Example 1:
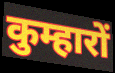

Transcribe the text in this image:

कुम्हारों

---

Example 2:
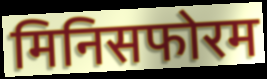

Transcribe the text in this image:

मिनिसफोरम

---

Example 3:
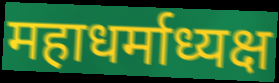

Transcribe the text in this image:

महाधर्माध्यक्ष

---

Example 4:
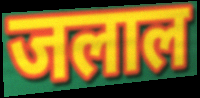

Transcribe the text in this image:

जलाल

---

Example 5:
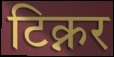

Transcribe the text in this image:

टिक्नर